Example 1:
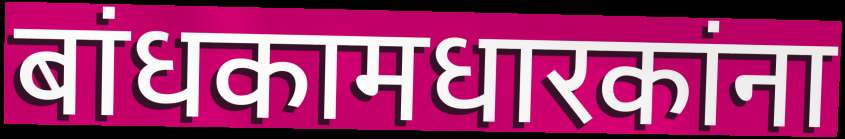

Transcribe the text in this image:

बांधकामधारकांना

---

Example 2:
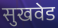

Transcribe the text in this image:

सुखवेड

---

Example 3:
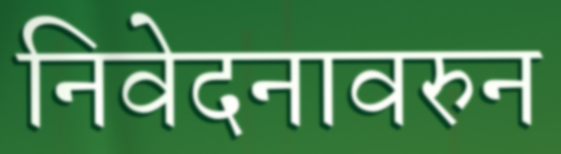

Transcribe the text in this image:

निवेदनावरुन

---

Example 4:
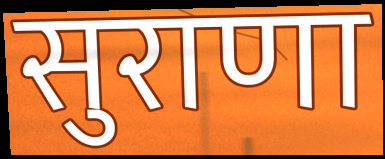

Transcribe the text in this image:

सुराणा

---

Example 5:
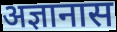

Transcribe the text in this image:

अज्ञानास